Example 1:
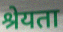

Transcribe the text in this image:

श्रेयता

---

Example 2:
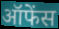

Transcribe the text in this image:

ऑफेंस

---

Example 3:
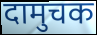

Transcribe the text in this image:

दामुचक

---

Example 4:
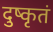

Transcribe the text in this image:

दुष्कृतं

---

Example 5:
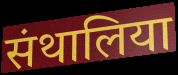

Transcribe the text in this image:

संथालिया